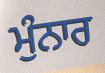
ਮੁੰਨਾਰ